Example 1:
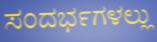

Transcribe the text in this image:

ಸಂದರ್ಭಗಳಲ್ಲು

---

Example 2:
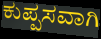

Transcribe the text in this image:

ಕುಪ್ಪಸವಾಗಿ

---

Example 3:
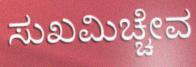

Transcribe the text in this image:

ಸುಖಮಿಚ್ಚೇವ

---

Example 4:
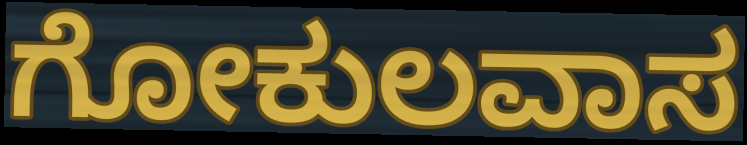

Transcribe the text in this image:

ಗೋಕುಲವಾಸ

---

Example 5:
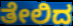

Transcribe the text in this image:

ತೇಲಿದ